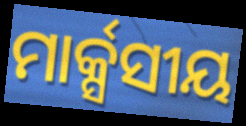
ମାର୍କ୍ସସୀୟ